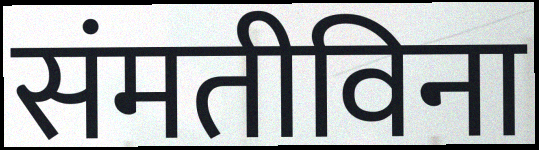
संमतीविना